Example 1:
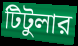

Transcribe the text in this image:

টিটুলার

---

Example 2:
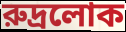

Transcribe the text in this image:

রুদ্রলোক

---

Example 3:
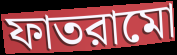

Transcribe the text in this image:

ফাতরামো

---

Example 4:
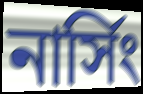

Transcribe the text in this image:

নার্সিং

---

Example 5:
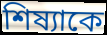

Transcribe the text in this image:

শিষ্যাকে